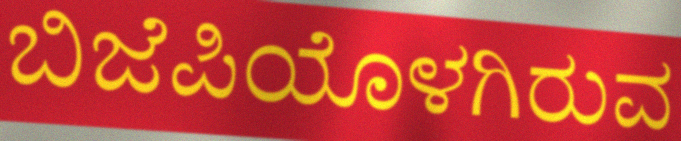
ಬಿಜೆಪಿಯೊಳಗಿರುವ